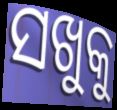
ସଖୁକୁ